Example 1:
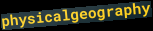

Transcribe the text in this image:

physicalgeography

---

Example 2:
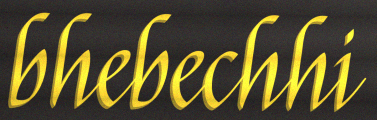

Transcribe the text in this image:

bhebechhi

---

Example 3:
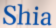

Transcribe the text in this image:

Shia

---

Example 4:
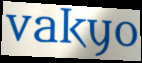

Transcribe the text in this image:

vakyo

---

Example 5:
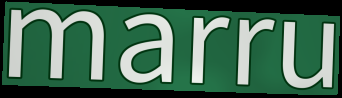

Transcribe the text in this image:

marru